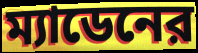
ম্যাডেনের